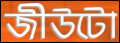
জীউটো